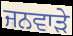
ਜਨਵਾੜੇ